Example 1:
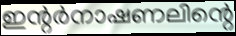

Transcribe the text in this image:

ഇന്റർനാഷണലിന്റെ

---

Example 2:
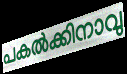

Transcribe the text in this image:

പകൽക്കിനാവു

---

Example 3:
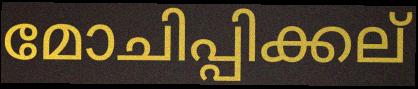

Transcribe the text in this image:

മോചിപ്പിക്കല്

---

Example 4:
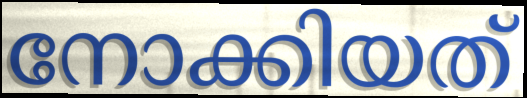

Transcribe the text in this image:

നോക്കിയത്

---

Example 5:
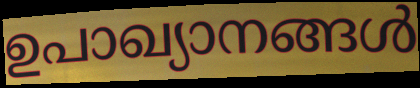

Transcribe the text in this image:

ഉപാഖ്യാനങ്ങൾ